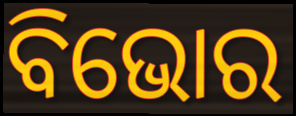
ବିଭୋର